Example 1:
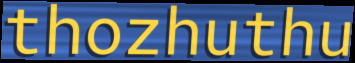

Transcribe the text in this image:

thozhuthu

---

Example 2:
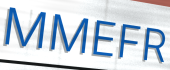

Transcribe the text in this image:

MMEFR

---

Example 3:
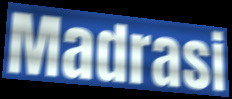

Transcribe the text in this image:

Madrasi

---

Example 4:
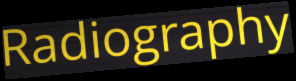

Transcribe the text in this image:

Radiography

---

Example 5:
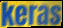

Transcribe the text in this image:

keras